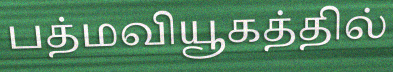
பத்மவியூகத்தில்